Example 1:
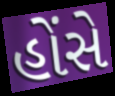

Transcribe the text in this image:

હોંસે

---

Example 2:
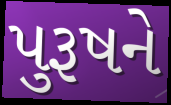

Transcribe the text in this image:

પુરૂષને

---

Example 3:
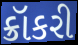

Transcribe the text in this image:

ક્રૉકરી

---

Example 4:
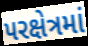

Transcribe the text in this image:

પરક્ષેત્રમાં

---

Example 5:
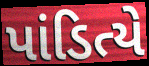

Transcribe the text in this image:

પાંડિત્યે